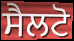
ਸੈਲਟੋ